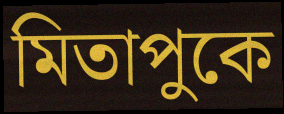
মিতাপুকে